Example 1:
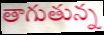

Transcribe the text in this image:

తాగుతున్న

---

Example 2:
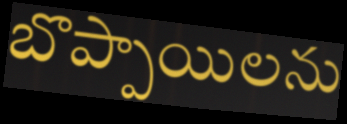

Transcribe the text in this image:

బొప్పాయిలను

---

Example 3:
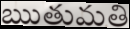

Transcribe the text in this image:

ఋతుమతి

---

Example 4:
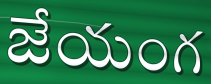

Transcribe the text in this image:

జేయంగ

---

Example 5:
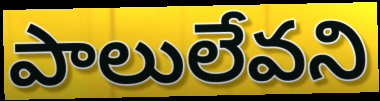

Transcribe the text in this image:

పాలులేవని